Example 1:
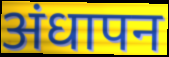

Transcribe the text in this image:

अंधापन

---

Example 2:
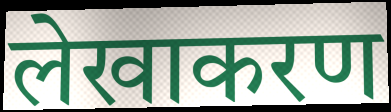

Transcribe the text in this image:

लेखाकरण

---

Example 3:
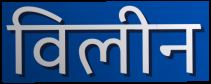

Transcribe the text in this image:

विलीन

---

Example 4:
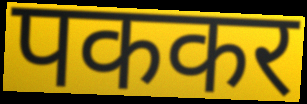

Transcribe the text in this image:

पककर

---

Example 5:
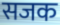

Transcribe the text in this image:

सजक